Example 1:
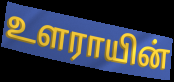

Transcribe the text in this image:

உளராயின்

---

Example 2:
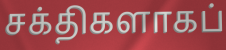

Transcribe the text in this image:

சக்திகளாகப்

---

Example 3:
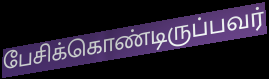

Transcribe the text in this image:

பேசிக்கொண்டிருப்பவர்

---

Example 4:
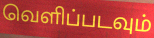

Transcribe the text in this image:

வெளிப்படவும்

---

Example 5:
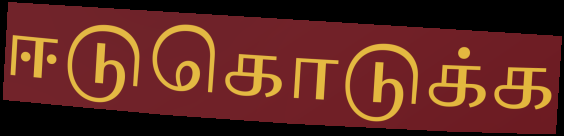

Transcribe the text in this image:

ஈடுகொடுக்க